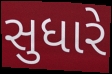
સુધારે